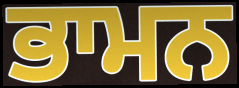
ਭਾਮਨ